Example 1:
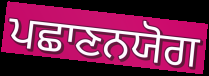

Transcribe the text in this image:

ਪਛਾਣਨਯੋਗ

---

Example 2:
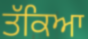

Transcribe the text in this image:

ਤੱਕਿਆ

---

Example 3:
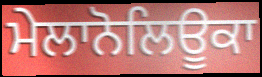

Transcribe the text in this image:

ਮੇਲਾਨੋਲਿਊਕਾ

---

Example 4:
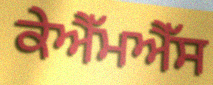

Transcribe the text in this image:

ਕੇਐੱਮਐੱਸ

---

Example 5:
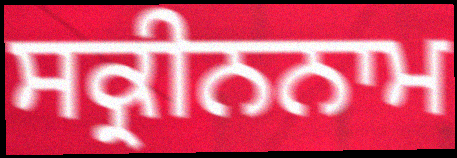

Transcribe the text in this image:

ਸਕ੍ਰੀਨਨਾਮ